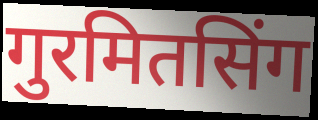
गुरमितसिंग